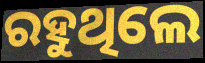
ରହୁଥିଲେ